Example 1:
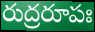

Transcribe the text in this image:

రుద్రరూపః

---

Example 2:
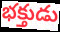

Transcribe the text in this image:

భక్తుడు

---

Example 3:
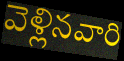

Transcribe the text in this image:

వెళ్లినవారి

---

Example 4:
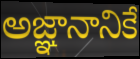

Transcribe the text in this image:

అజ్ఞానానికే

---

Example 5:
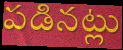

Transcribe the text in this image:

పడినట్లు